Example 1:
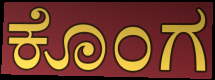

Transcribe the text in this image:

ಕೊಂಗ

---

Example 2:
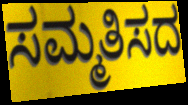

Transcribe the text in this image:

ಸಮ್ಮತಿಸದ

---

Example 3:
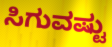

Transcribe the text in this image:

ಸಿಗುವಷ್ಟು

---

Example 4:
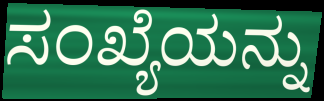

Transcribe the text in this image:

ಸಂಖ್ಯೆಯನ್ನು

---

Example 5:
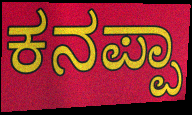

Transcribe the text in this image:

ಕನಪ್ಪಾ